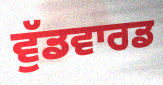
ਵੁੱਡਵਾਰਡ